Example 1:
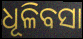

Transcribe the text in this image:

ଧୂଳିବସା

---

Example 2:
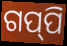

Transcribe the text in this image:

ଗପ୍‌ପି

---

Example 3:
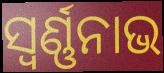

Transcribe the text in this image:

ସ୍ବର୍ଣ୍ଣନାଭ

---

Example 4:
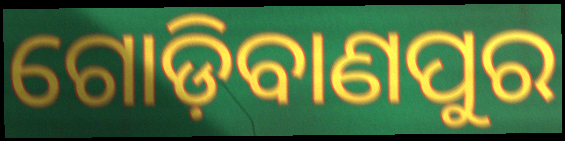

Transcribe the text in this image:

ଗୋଡ଼ିବାଣପୁର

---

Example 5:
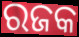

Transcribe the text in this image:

ରଜକ